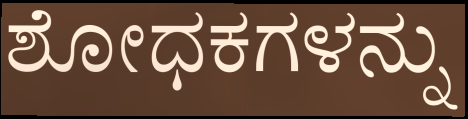
ಶೋಧಕಗಳನ್ನು